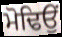
ਮੋਢਿਉਂ